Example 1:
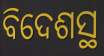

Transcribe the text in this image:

ବିଦେଶସ୍ଥ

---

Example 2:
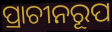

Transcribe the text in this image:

ପ୍ରାଚୀନରୂପ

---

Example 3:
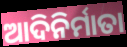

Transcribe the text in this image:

ଆଦିନିର୍ମାତା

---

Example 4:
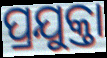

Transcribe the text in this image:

ପ୍ରଯୁକ୍ତା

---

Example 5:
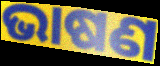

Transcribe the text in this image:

ଭାଷଣ